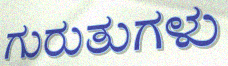
ಗುರುತುಗಳು